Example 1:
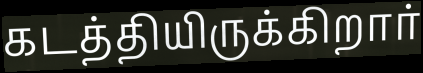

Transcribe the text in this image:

கடத்தியிருக்கிறார்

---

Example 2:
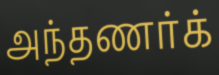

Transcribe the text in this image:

அந்தணர்க்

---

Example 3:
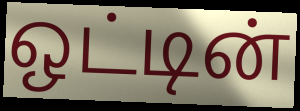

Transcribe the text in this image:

ஒட்டின்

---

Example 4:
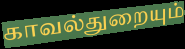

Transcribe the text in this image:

காவல்துறையும்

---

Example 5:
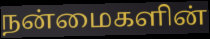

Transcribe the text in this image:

நன்மைகளின்